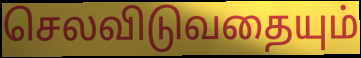
செலவிடுவதையும்